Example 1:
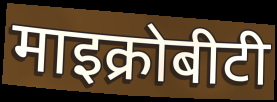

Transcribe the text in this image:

माइक्रोबीटी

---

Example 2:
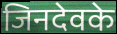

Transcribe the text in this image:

जिनदेवके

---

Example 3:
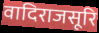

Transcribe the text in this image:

वादिराजसूरि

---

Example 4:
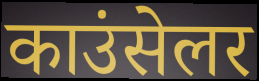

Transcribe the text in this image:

काउंसेलर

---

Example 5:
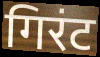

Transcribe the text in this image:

गिरंट